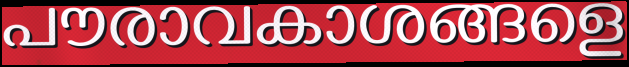
പൗരാവകാശങ്ങളെ